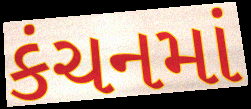
કંચનમાં